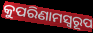
କୁପରିଣାମସ୍ୱରୂପ